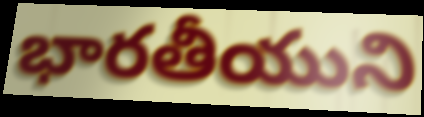
భారతీయుని